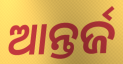
ଆନ୍ତର୍ଜ